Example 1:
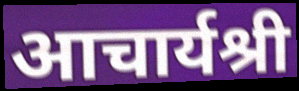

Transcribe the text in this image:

आचार्यश्री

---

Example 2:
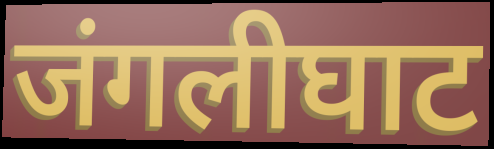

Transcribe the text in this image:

जंगलीघाट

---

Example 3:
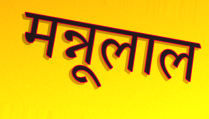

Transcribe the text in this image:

मन्नूलाल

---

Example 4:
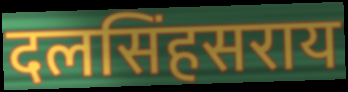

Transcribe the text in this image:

दलसिंहसराय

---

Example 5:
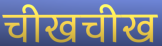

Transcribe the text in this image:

चीखचीख